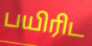
பயிரிட